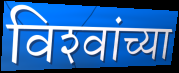
विश्वांच्या